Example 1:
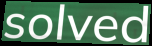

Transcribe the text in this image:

solved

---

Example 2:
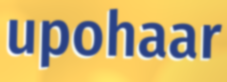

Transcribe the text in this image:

upohaar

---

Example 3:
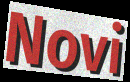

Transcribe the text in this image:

Novi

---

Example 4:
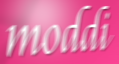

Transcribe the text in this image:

moddi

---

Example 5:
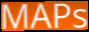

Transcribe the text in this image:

MAPs